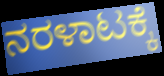
ನರಳಾಟಕ್ಕೆ